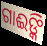
ଗାଈଙ୍କି